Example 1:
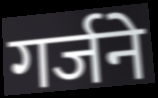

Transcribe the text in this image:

गर्जने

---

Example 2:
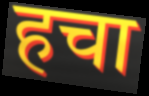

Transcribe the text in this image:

हचा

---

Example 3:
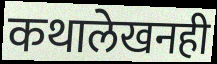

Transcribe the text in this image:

कथालेखनही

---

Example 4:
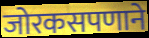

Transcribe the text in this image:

जोरकसपणाने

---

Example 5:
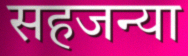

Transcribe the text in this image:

सहजन्या